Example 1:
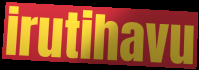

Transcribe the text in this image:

irutihavu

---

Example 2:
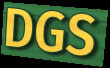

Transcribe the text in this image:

DGS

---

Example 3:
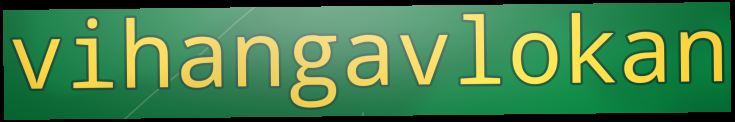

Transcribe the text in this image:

vihangavlokan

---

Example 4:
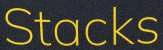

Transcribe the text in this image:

Stacks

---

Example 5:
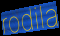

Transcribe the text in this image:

rodila